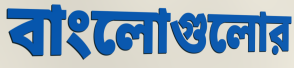
বাংলোগুলোর